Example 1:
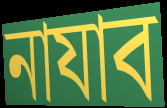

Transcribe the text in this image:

নাযাব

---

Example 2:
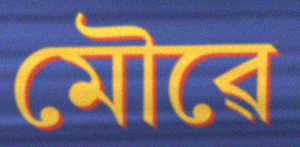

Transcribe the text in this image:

মৌৱে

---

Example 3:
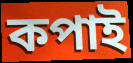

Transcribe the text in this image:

কপাই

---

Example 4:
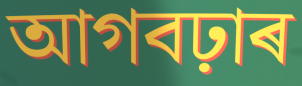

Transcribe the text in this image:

আগবঢ়াৰ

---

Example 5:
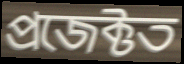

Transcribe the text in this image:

প্ৰজেক্টত